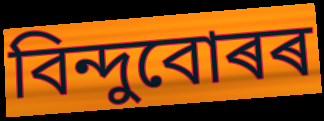
বিন্দুবোৰৰ